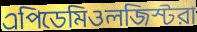
এপিডেমিওলজিস্টরা